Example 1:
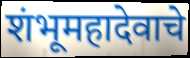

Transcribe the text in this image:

शंभूमहादेवाचे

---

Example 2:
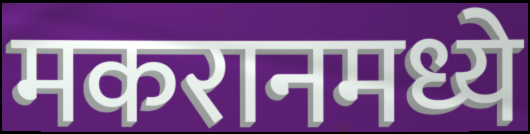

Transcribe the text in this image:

मकरानमध्ये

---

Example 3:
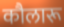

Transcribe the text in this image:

कौलारू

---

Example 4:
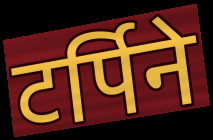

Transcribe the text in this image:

टर्पिने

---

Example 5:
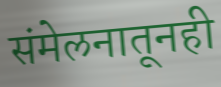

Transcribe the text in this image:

संमेलनातूनही